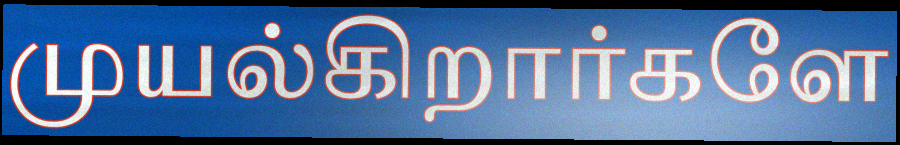
முயல்கிறார்களே